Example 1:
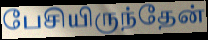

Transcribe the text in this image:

பேசியிருந்தேன்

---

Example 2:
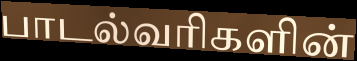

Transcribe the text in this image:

பாடல்வரிகளின்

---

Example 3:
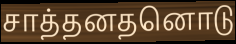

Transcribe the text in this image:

சாத்தனதனொடு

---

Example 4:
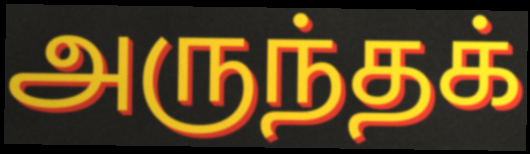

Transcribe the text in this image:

அருந்தக்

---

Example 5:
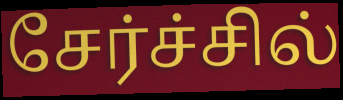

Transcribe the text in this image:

சேர்ச்சில்